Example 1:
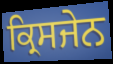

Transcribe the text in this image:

ਕ੍ਰਿਸਜੇਨ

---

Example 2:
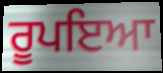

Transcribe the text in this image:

ਰੂਪਇਆ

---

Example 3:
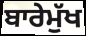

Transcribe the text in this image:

ਬਾਰੇਮੁੱਖ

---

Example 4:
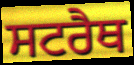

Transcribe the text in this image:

ਸਟਰੈਥ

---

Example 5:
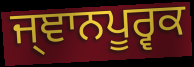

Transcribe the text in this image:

ਜ੍ਞਾਨਪੂਰ੍ਵਕ